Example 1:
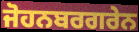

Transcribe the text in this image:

ਜੋਹਨਬਰਗਰੇਨ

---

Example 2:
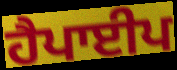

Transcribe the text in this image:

ਹੈਪਾਈਪ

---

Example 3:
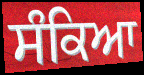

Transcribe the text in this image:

ਸੰਕਿਆ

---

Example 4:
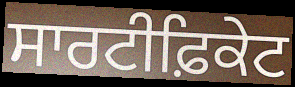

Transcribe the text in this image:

ਸਾਰਟੀਫ਼ਿਕੇਟ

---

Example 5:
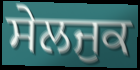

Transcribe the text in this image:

ਸੇਲਜੁਕ